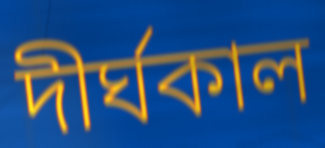
দীর্ঘকাল